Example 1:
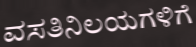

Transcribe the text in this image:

ವಸತಿನಿಲಯಗಳಿಗೆ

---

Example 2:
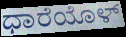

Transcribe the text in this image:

ಧಾರೆಯೊಳ್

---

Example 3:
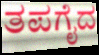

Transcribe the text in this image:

ತಪಗೈದ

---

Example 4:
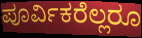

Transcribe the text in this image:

ಪೂರ್ವಿಕರೆಲ್ಲರೂ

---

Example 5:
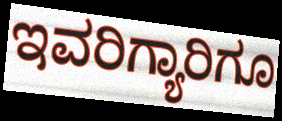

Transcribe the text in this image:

ಇವರಿಗ್ಯಾರಿಗೂ